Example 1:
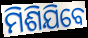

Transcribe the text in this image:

ମିଶିଯିବେ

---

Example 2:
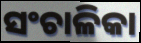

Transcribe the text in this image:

ସଂଚାଳିକା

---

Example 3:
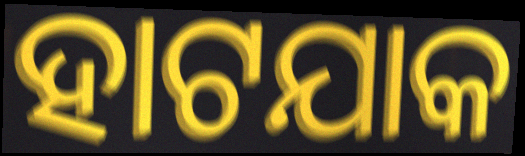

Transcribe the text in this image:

ହାଟଯାକ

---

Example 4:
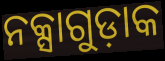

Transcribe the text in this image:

ନକ୍ସାଗୁଡ଼ାକ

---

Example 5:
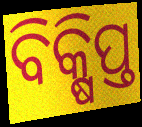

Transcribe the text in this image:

ବିକ୍ଷିପ୍ତ